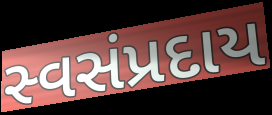
સ્વસંપ્રદાય